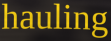
hauling